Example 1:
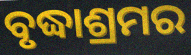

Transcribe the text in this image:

ବୃଦ୍ଧାଶ୍ରମର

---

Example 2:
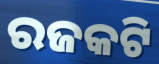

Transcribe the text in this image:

ରଜକଟି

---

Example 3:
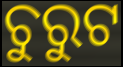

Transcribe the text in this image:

ଚୁରୁଟ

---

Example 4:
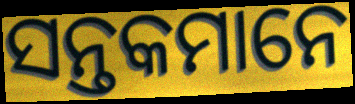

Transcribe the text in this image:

ସନ୍ତକମାନେ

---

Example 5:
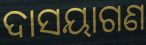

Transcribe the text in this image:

ଦାସୟାଗଣ